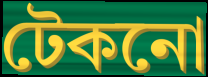
টেকনো